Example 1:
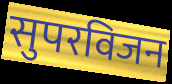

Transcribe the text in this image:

सुपरविजन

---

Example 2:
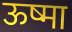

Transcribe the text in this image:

ऊष्मा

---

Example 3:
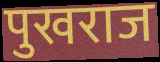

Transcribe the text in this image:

पुखराज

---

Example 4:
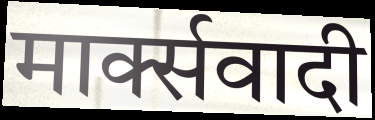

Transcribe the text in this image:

मार्क्सवादी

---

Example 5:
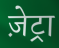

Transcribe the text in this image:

ज़ेट्रा